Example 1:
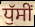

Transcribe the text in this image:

ਧੁੱਸੀਂ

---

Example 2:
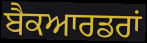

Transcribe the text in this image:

ਬੈਕਆਰਡਰਾਂ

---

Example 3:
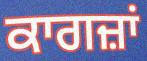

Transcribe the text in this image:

ਕਾਗਜ਼ਾਂ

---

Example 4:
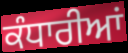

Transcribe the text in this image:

ਕੰਧਾਰੀਆਂ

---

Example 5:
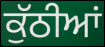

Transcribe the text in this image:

ਕੁੱਠੀਆਂ